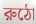
রুঠো